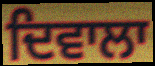
ਦਿਵਾਲਾ